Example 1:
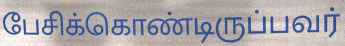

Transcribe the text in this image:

பேசிக்கொண்டிருப்பவர்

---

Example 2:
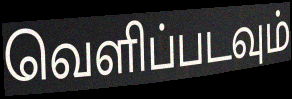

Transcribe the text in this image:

வெளிப்படவும்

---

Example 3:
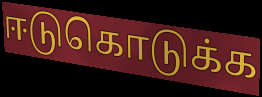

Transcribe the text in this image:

ஈடுகொடுக்க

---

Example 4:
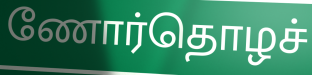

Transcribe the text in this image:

ணோர்தொழச்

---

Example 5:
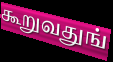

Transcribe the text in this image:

கூறுவதுங்